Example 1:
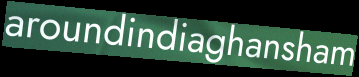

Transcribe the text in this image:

aroundindiaghansham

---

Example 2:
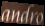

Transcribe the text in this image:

andro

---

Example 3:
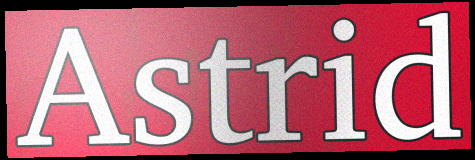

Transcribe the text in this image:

Astrid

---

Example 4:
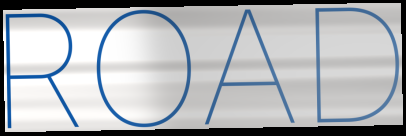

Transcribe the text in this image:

ROAD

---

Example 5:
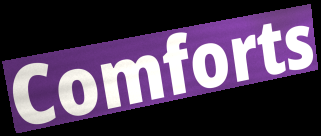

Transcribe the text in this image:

Comforts